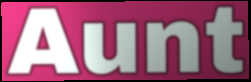
Aunt